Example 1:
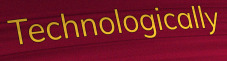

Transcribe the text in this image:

Technologically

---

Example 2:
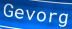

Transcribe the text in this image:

Gevorg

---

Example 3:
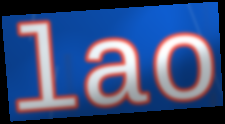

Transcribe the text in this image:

lao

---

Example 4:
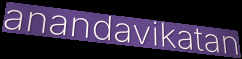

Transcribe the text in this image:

anandavikatan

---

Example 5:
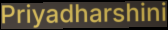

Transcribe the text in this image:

Priyadharshini